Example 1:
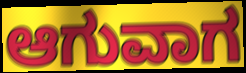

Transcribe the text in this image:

ಆಗುವಾಗ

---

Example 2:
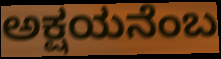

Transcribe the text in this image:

ಅಕ್ಷಯನೆಂಬ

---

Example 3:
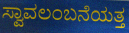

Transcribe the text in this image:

ಸ್ವಾವಲಂಬನೆಯತ್ತ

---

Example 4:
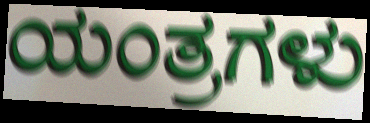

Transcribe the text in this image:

ಯಂತ್ರಗಳು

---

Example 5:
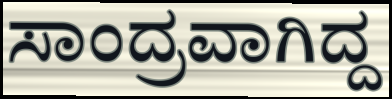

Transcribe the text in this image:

ಸಾಂದ್ರವಾಗಿದ್ದ